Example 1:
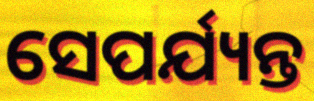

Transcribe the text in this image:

ସେପର୍ଯ୍ୟନ୍ତ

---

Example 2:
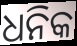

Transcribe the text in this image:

ଧନିକ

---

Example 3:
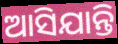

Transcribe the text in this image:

ଆସିଯାନ୍ତି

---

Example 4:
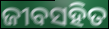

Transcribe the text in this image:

ଜୀବସହିତ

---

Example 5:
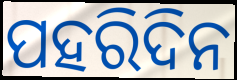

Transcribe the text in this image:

ପହରିଦିନ